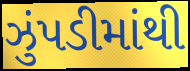
ઝુંપડીમાંથી